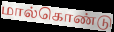
மால்கொண்டு